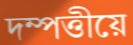
দম্পত্তীয়ে